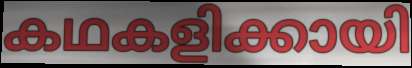
കഥകളിക്കായി